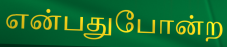
என்பதுபோன்ற